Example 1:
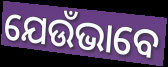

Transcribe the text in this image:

ଯେଉଁଭାବେ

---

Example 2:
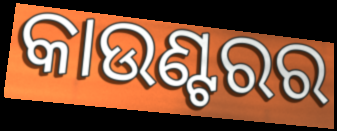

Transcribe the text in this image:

କାଉଣ୍ଟରର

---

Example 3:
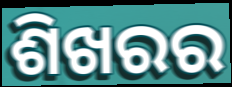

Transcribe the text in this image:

ଶିଖରର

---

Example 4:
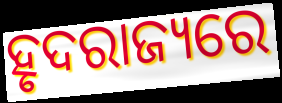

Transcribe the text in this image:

ହୃଦରାଜ୍ୟରେ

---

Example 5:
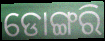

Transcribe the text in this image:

ଡୋଙ୍ଗରି